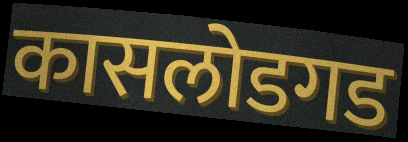
कासलोडगड